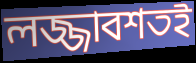
লজ্জাবশতই